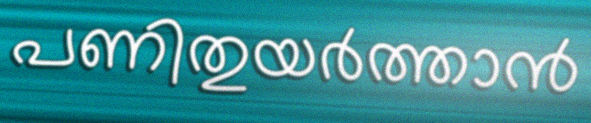
പണിതുയർത്താൻ